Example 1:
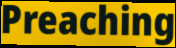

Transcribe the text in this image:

Preaching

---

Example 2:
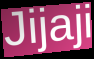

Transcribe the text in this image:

Jijaji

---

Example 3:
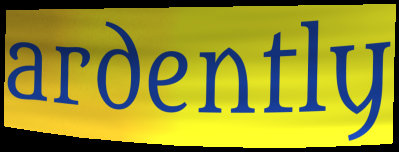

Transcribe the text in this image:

ardently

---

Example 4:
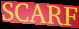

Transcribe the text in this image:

SCARF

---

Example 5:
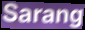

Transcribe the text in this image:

Sarang